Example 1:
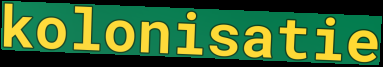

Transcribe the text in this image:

kolonisatie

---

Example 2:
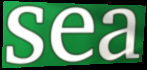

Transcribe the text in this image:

sea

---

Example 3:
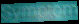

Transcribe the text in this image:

Symptom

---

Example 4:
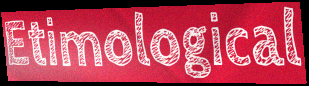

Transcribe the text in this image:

Etimological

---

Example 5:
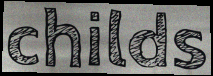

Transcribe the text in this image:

childs